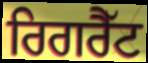
ਰਿਗਰੈੱਟ